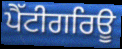
ਪੈੱਟੀਗਰਿਊ